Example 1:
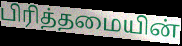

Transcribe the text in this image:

பிரித்தமையின்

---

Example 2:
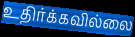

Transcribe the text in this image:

உதிர்க்கவில்லை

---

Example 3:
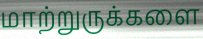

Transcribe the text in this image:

மாற்றுருக்களை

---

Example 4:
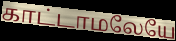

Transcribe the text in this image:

காட்டாமலேயே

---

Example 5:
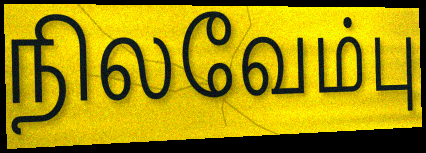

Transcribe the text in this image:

நிலவேம்பு